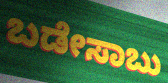
ಬಡೇಸಾಬು